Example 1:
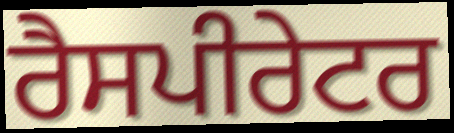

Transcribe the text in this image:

ਰੈਸਪੀਰੇਟਰ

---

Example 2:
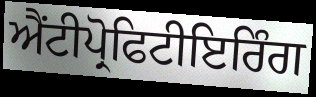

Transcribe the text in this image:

ਐਂਟੀਪ੍ਰੋਫਿਟੀਇਰਿੰਗ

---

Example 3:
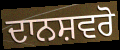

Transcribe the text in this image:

ਦਾਨਸ਼ਵਰੋ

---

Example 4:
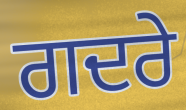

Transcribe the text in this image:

ਗਦਰੇ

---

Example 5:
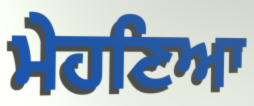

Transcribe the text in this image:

ਮੇਹਣਿਆ